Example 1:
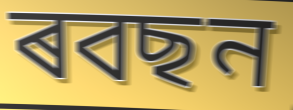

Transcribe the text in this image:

ৰবছন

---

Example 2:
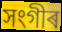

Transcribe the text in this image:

সংগীৰ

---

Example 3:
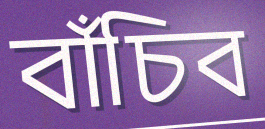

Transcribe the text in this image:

বাঁচিব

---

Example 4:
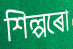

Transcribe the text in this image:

শিল্পৰো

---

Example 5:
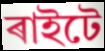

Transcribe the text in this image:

ৰাইটে